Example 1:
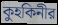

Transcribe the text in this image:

কুহকিনীর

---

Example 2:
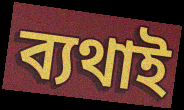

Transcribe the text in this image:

ব্যথাই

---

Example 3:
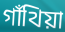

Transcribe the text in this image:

গাঁথিয়া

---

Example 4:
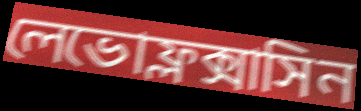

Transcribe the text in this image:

লেভোফ্লক্সাসিন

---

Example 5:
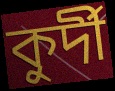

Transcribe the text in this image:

কুর্দী